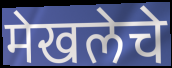
मेखलेचे